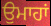
ਉਮਾਹਾਂ